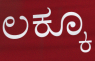
ಲಕ್ಕೂ